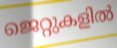
ജെറ്റുകളിൽ